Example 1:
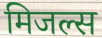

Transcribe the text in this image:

मिजल्स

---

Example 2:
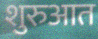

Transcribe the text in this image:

शुरुआत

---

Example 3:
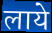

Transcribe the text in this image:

लाये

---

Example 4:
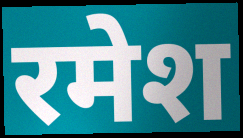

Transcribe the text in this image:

रमेश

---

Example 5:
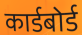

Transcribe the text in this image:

कार्डबोर्ड